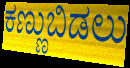
ಕಣ್ಣುಬಿಡಲು